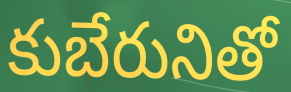
కుబేరునితో